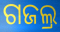
ଗଜଲ୍ର